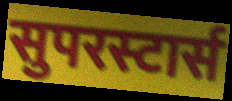
सुपरस्टार्स